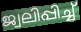
ജ്വലിപ്പിച്ച്